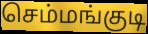
செம்மங்குடி